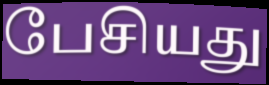
பேசியது